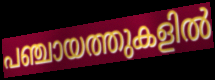
പഞ്ചായത്തുകളിൽ